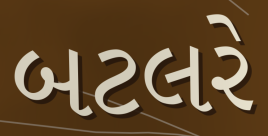
બટલરે